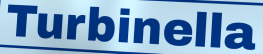
Turbinella